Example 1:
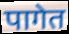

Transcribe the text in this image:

पागेत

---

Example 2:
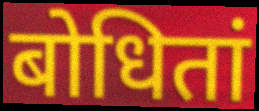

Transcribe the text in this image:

बोधितां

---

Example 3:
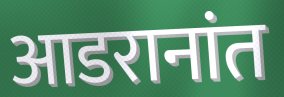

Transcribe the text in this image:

आडरानांत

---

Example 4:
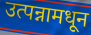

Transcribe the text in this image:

उत्पन्नामधून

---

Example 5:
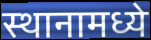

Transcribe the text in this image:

स्थानामध्ये